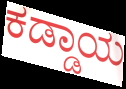
ಕಡ್ಡಾಯ